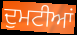
ਦੁਮਟੀਆਂ